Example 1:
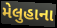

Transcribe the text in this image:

મેલુહાના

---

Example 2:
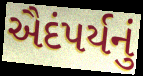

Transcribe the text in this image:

ઐદંપર્યનું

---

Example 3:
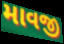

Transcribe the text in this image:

માવજી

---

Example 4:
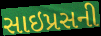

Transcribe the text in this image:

સાઇપ્રસની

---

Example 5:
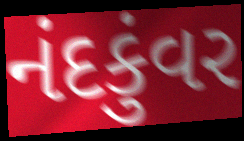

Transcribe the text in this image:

નંદકુંવર